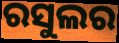
ରସୁଲର